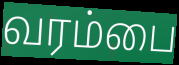
வரம்பை